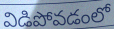
విడిపోవడంలో